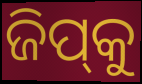
ଜିପ୍‌କୁ